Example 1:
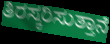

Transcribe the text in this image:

ತಿರಸ್ಕರಿಸುತ್ತಾನೆ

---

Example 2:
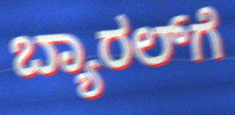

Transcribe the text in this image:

ಬ್ಯಾರಲ್‌ಗೆ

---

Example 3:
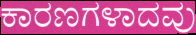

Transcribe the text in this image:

ಕಾರಣಗಳಾದವು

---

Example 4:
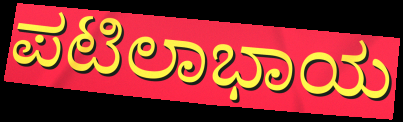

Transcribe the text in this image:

ಪಟಿಲಾಭಾಯ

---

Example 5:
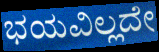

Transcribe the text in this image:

ಭಯವಿಲ್ಲದೇ